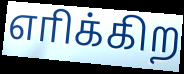
எரிக்கிற